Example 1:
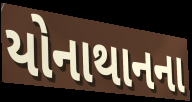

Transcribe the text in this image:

યોનાથાનના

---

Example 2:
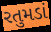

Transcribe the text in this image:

રતુમડાં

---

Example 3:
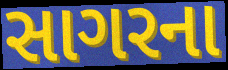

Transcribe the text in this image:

સાગરના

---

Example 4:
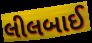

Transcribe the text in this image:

લીલબાઈ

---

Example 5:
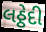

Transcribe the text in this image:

લઠ્ઠેદી